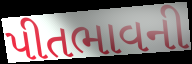
પીતભાવની